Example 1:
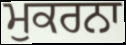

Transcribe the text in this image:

ਮੁਕਰਨਾ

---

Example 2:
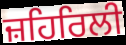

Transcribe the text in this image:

ਜ਼ਹਿਰਿਲੀ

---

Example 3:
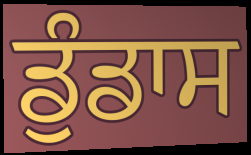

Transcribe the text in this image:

ਡੁੰਡਾਸ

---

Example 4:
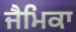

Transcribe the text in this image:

ਜੈਮਿਕਾ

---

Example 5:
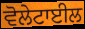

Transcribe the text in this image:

ਵੋਲੇਟਾਈਲ